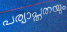
പര്യാപ്തതയും